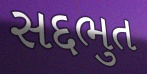
સદ્દભુત